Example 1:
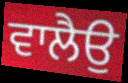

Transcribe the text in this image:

ਵਾਲੈਉ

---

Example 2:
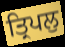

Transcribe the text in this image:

ਤ੍ਰਿਪਲੁ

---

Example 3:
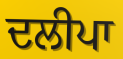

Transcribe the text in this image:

ਦਲੀਪਾ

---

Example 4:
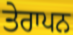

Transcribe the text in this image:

ਤੇਰਾਪਨ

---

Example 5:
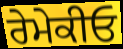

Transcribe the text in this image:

ਰੇਮੇਕੀਓ